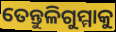
ତେନ୍ତୁଳିଗୁମ୍ମାକୁ